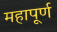
महापूर्ण